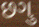
છગુ